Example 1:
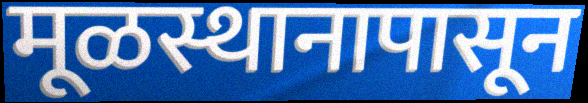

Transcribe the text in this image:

मूळस्थानापासून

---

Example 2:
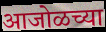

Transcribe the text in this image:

आजोळच्या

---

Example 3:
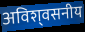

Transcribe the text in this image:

अविश्वसनीय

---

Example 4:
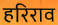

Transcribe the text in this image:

हरिराव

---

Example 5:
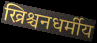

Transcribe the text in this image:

ख्रिश्चनधर्मीय